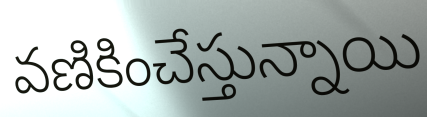
వణికించేస్తున్నాయి